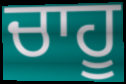
ਚਾਹੂ